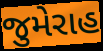
જુમેરાહ